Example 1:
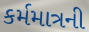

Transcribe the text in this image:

કર્મમાત્રની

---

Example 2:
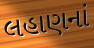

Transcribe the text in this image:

લહાણનાં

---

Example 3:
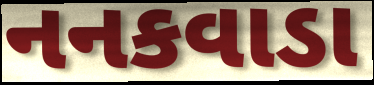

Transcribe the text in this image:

નનકવાડા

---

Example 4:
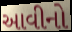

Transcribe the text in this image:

આવીનો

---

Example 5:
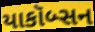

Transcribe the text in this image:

યાકૉબ્સન